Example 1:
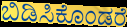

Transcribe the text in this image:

ಬಿಡಿಸಿಕೊಂಡರೆ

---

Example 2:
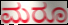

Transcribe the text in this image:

ಮರೂ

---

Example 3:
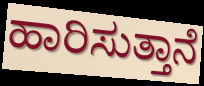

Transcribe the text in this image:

ಹಾರಿಸುತ್ತಾನೆ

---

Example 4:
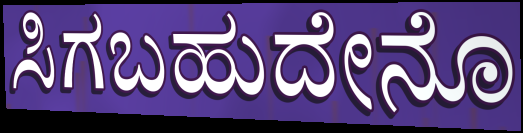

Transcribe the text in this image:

ಸಿಗಬಹುದೇನೊ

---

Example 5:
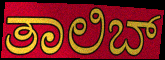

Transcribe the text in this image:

ತಾಲಿಬ್